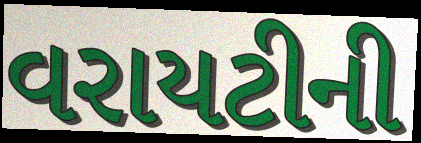
વરાયટીની